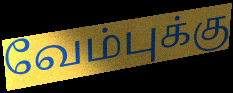
வேம்புக்கு